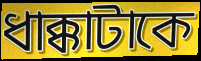
ধাক্কাটাকে